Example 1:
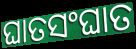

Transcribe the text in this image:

ଘାତସଂଘାତ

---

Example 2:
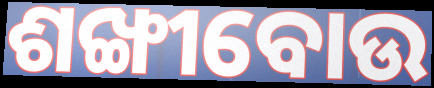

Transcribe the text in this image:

ଶଙ୍ଖୀବୋଉ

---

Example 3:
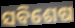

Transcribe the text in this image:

ସବିଶେଷ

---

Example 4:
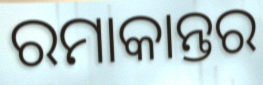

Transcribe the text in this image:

ରମାକାନ୍ତର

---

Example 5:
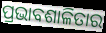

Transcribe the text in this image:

ପ୍ରଭାବଶାଳିତାର